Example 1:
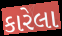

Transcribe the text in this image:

કારેલા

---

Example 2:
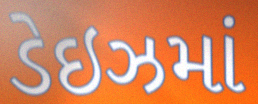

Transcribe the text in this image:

ડેઇઝમાં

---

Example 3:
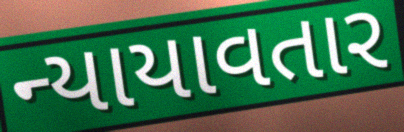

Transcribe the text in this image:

ન્યાયાવતાર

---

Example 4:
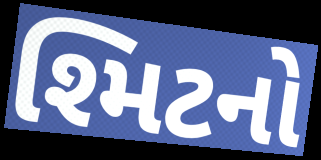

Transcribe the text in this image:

શ્મિટનો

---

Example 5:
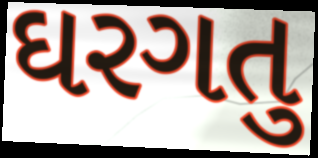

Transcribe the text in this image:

ઘરગતુ